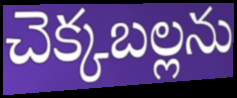
చెక్కబల్లను